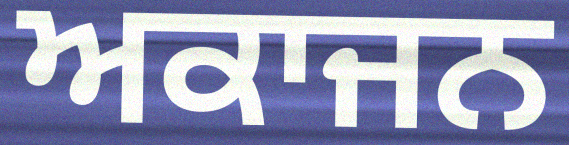
ਅਕਾਜਨ